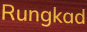
Rungkad